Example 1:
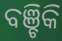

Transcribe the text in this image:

ବଞ୍ଚିକି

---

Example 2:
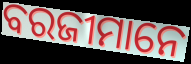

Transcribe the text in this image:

ବରଜୀମାନେ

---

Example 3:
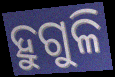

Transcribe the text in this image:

ହୁଗୁଳି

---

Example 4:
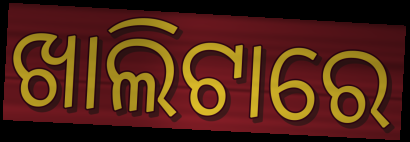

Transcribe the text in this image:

ଖାଲିଟାରେ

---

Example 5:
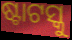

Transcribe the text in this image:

ଷ୍ଟାଟସ୍କୁ